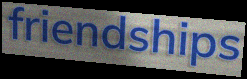
friendships